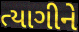
ત્યાગીને